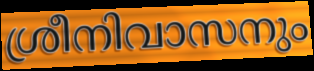
ശ്രീനിവാസനും